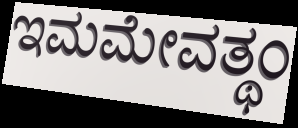
ಇಮಮೇವತ್ಥಂ